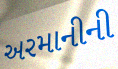
અરમાનીની